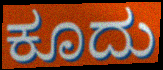
ಕೂದು